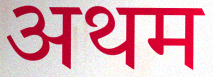
अथम